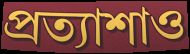
প্রত্যাশাও